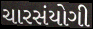
ચારસંયોગી